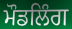
ਮੌਡਲਿੰਗ